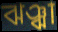
ঝঞ্ঝা